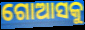
ଗୋଆସକୁ